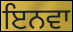
ਇਨਵਾ